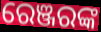
ରେଞ୍ଜରଙ୍କ